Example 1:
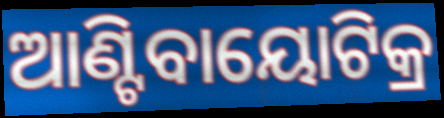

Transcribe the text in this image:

ଆଣ୍ଟିବାୟୋଟିକ୍ର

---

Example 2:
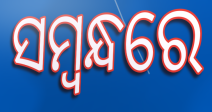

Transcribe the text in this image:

ସମ୍ୱନ୍ଧରେ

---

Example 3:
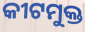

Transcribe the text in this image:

କୀଟମୁକ୍ତ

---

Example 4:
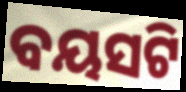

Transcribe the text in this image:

ବୟସଟି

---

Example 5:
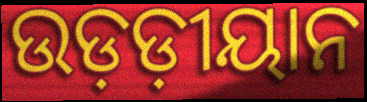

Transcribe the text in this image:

ଉଡ଼ଡ଼ୀୟାନ